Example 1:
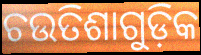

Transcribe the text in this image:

ଚଉତିଶାଗୁଡ଼ିକ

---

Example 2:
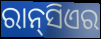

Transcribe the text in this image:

ରାନ୍‌ସିଏର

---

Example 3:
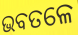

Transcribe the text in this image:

ଭବତଳେ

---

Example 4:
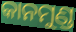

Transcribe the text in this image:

କାନମୁଣ୍ଡ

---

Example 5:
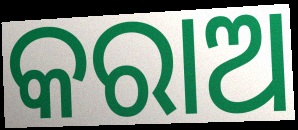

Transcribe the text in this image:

କରାଅ